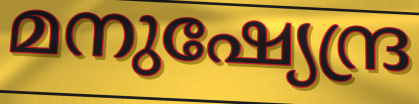
മനുഷ്യേന്ദ്ര